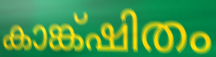
കാങ്ക്ഷിതം